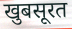
खुबसूरत